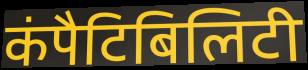
कंपैटिबिलिटी